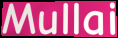
Mullai